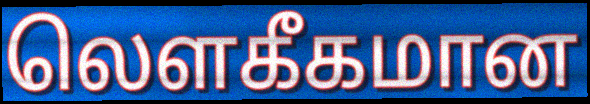
லெளகீகமான